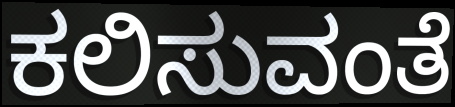
ಕಲಿಸುವಂತೆ